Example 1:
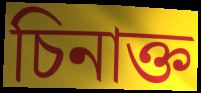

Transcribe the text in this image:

চিনাক্ত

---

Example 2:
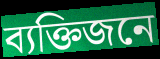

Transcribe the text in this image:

ব্যক্তিজনে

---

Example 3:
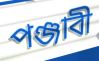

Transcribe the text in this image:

পঞ্জাবী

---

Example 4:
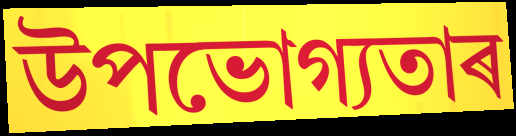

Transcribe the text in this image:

উপভোগ্যতাৰ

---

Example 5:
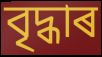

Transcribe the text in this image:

বৃদ্ধাৰ